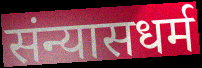
संन्यासधर्म